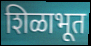
शिळाभूत